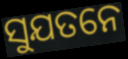
ସୁଯତନେ